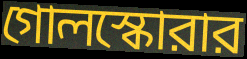
গোলস্কোরার